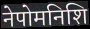
नेपोमनिशि